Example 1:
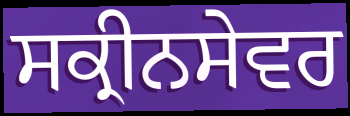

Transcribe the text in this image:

ਸਕ੍ਰੀਨਸੇਵਰ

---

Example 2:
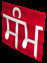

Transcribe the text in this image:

ਸੰਮ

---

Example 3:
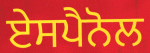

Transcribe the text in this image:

ਏਸਪੈਨੋਲ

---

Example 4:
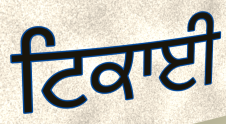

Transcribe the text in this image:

ਟਿਕਾਈ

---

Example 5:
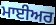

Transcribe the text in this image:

ਮਾਈਅਰ